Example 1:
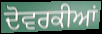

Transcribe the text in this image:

ਦੋਵਰਕੀਆਂ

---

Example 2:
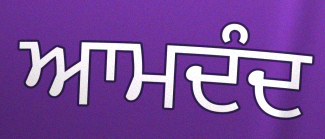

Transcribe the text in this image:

ਆਮਦੰਦ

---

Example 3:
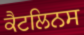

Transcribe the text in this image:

ਕੈਟਲਿਨਸ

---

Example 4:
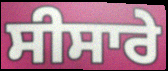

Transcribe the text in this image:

ਸੀਸਾਰੇ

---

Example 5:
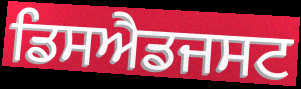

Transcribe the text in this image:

ਡਿਸਐਡਜਸਟ